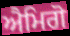
ਐਮਿਗੋ